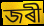
জৰী